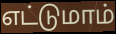
எட்டுமாம்